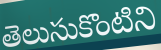
తెలుసుకొంటిని